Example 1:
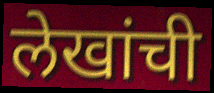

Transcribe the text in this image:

लेखांची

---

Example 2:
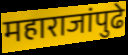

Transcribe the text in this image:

महाराजांपुढे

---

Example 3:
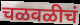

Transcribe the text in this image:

चळवळीचं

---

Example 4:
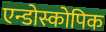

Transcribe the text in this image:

एन्डोस्कोपिक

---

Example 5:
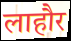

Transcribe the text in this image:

लाहौर